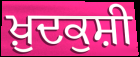
ਖ਼ੁਦਕੁਸ਼ੀ